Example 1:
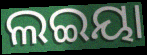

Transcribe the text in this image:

ଲଇୟା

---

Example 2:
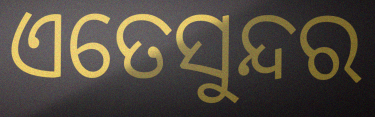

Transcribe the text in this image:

ଏତେସୁନ୍ଦର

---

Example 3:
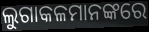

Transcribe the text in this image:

ଲୁଗାକଳମାନଙ୍କରେ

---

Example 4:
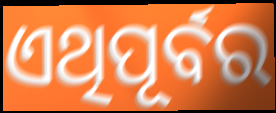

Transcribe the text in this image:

ଏଥିପୂର୍ବର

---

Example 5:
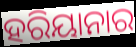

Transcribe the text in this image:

ହରିୟାନାର